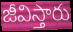
జీవిస్తారు